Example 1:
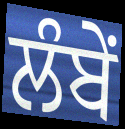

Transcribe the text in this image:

ਲੰਬੇਂ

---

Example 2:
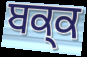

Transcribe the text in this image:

ਬਕ੍ਕ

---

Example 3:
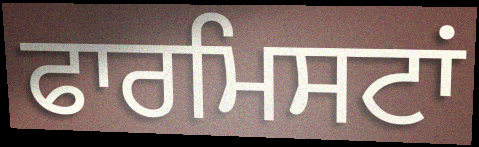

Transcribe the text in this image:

ਫਾਰਮਿਸਟਾਂ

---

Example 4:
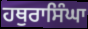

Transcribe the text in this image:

ਹਥੁਰਾਸਿੰਘਾ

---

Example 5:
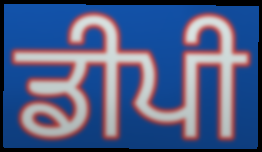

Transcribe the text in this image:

ਡੀਪੀ